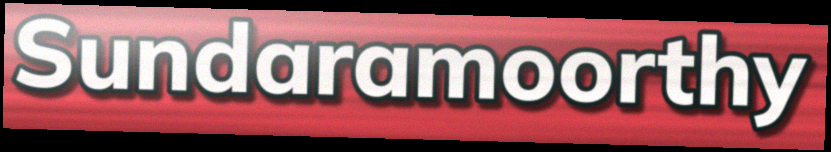
Sundaramoorthy